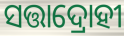
ସତ୍ତାଦ୍ରୋହୀ